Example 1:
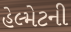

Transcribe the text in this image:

હેલ્મેટની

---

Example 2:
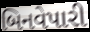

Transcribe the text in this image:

બિનવેપારી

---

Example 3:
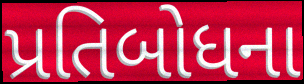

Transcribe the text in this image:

પ્રતિબોધના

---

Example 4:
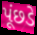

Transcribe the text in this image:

પૂંછડે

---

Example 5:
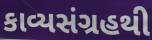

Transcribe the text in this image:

કાવ્યસંગ્રહથી